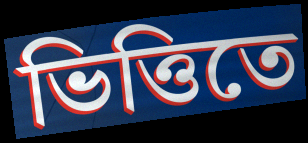
ভিত্তিতে